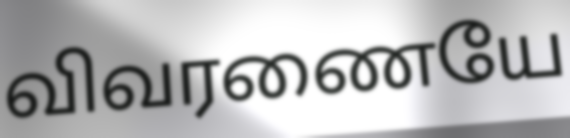
விவரணையே